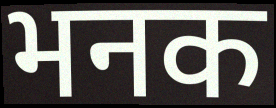
भनक